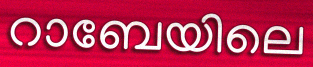
റാബേയിലെ